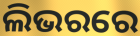
ଲିଭରରେ